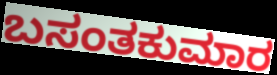
ಬಸಂತಕುಮಾರ